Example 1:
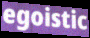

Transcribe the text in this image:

egoistic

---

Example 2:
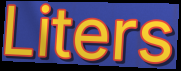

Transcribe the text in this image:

Liters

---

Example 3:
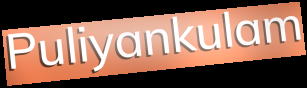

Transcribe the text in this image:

Puliyankulam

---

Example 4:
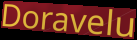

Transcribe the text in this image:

Doravelu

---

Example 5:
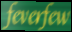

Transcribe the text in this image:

feverfew